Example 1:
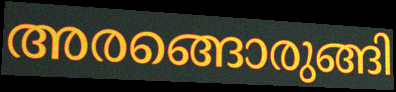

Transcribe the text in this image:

അരങ്ങൊരുങ്ങി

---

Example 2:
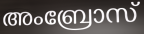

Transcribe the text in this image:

അംബ്രോസ്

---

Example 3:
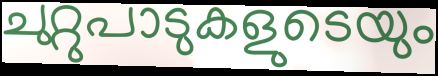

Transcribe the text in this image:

ചുറ്റുപാടുകളുടെയും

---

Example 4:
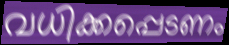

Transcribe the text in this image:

വധിക്കപ്പെടണം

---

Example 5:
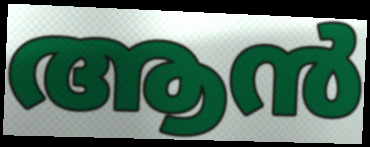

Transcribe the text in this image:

ആൻ